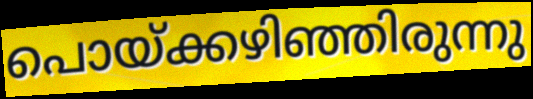
പൊയ്ക്കഴിഞ്ഞിരുന്നു